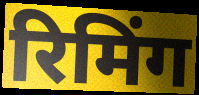
रिमिंग